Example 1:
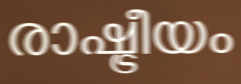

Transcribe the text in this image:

രാഷ്ട്രീയം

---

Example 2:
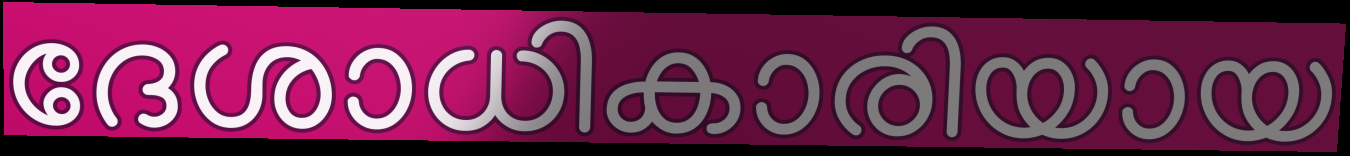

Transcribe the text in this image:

ദേശാധികാരിയായ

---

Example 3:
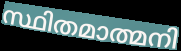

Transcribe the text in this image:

സ്ഥിതമാത്മനി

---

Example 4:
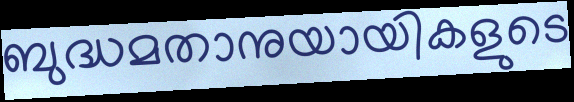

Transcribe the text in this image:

ബുദ്ധമതാനുയായികളുടെ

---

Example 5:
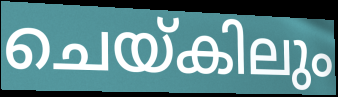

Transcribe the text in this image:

ചെയ്കിലും